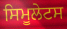
ਸਿਮੂਲੇਟਸ